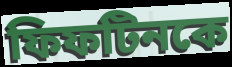
ফিফটিনকে